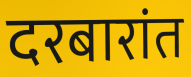
दरबारांत